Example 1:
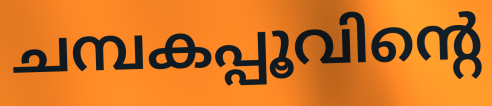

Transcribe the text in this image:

ചമ്പകപ്പൂവിന്റെ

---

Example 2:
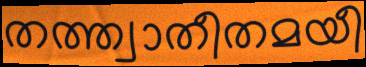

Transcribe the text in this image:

തത്ത്വാതീതമയീ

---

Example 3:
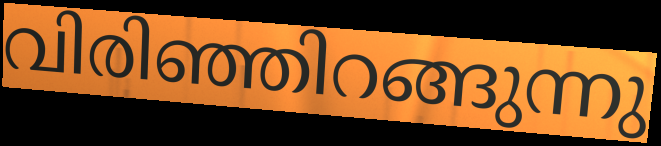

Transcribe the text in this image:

വിരിഞ്ഞിറങ്ങുന്നു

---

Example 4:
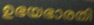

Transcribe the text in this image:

ഉഭയഭാരതി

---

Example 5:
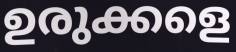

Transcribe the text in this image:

ഉരുക്കളെ